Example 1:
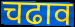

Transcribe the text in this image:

चढाव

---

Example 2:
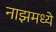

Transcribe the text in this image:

नाझमध्ये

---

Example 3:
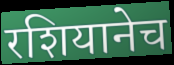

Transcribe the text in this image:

रशियानेच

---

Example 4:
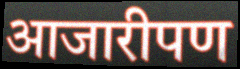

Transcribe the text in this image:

आजारीपण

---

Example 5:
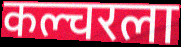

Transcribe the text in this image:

कल्चरला